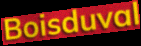
Boisduval